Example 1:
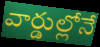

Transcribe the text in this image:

వార్డుల్లోనే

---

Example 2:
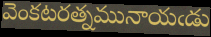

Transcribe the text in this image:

వెంకటరత్నమునాయఁడు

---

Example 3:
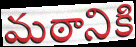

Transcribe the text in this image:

మఠానికి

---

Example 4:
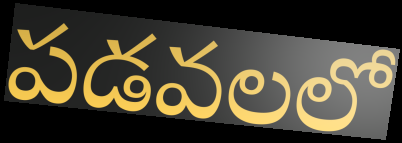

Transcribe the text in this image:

పడవలలో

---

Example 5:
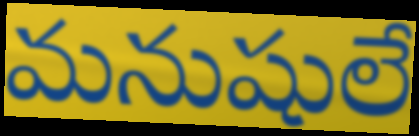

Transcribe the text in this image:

మనుషులే